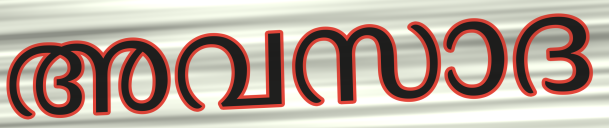
അവസാദ